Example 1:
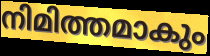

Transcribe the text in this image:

നിമിത്തമാകും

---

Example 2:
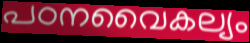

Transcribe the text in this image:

പഠനവൈകല്യം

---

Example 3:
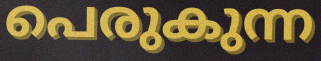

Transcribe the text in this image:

പെരുകുന്ന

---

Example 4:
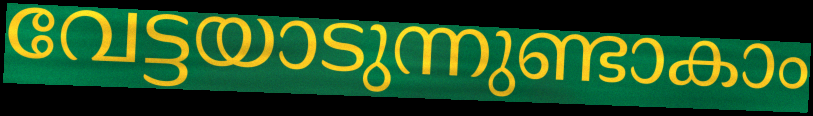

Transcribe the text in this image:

വേട്ടയാടുന്നുണ്ടാകാം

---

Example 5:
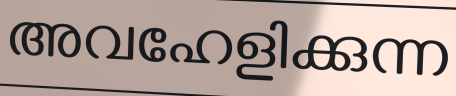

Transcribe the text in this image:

അവഹേളിക്കുന്ന